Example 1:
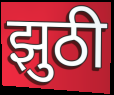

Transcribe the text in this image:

झुठी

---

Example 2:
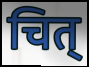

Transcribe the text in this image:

चित्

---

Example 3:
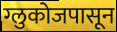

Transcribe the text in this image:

ग्लुकोजपासून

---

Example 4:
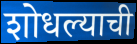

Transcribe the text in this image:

शोधल्याची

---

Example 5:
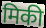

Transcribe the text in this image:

मिकी